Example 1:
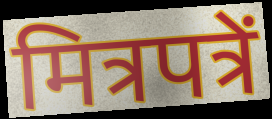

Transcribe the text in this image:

मित्रपत्रें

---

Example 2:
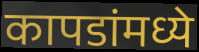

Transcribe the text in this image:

कापडांमध्ये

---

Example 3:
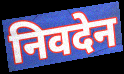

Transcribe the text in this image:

निवदेन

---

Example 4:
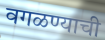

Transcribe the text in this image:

वगळण्याची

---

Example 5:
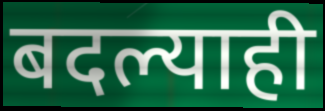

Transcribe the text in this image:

बदल्याही